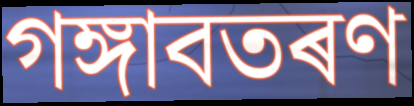
গঙ্গাবতৰণ